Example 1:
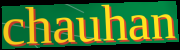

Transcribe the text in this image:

chauhan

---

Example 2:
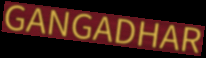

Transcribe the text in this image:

GANGADHAR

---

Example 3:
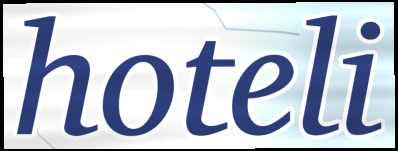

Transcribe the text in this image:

hoteli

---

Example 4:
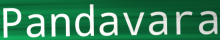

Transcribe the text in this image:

Pandavara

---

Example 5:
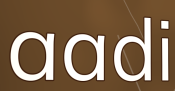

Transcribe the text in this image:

aadi